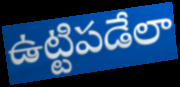
ఉట్టిపడేలా